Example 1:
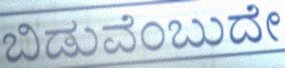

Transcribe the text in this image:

ಬಿಡುವೆಂಬುದೇ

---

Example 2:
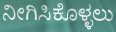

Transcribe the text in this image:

ನೀಗಿಸಿಕೊಳ್ಳಲು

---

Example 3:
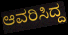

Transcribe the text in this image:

ಆವರಿಸಿದ್ದ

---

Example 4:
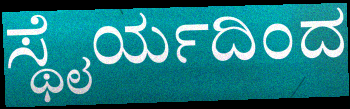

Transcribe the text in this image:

ಸ್ಥೈರ್ಯದಿಂದ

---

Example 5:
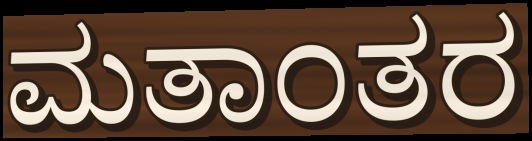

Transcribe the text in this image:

ಮತಾಂತರ